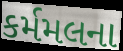
કર્મમલના